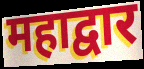
महाद्वार